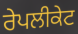
ਰੇਪਲੀਕੇਟ